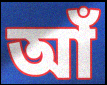
আঁ